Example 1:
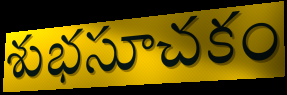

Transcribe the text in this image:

శుభసూచకం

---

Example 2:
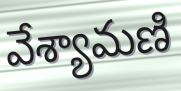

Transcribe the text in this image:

వేశ్యామణి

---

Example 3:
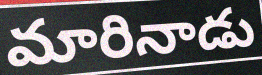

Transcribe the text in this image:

మారినాడు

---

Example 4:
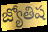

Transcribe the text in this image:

జ్యోతిష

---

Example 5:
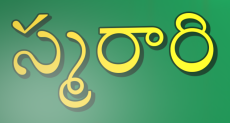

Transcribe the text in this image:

స్మరారి